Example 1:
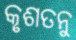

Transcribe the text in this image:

କୃଶତନୁ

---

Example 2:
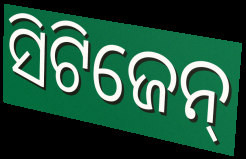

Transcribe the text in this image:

ସିଟିଜେନ୍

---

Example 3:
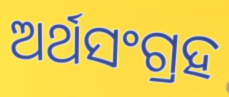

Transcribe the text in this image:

ଅର୍ଥସଂଗ୍ରହ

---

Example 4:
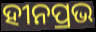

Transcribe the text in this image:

ହୀନପ୍ରଭ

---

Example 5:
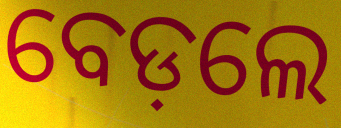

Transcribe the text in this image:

ବେଡ଼ଲେ